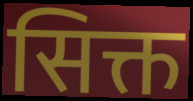
सिक्त